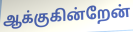
ஆக்குகின்றேன்